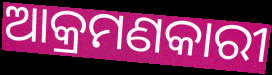
ଆକ୍ରମଣକାରୀ